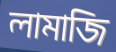
লামাজি